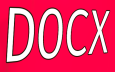
DOCX